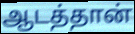
ஆடத்தான்